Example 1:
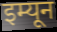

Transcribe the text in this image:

इम्यून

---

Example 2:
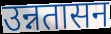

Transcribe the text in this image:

उन्नतासन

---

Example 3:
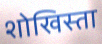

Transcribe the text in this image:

शोखिस्ता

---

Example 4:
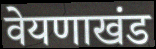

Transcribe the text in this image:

वेयणाखंड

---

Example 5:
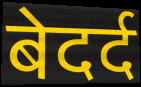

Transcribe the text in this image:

बेदर्द